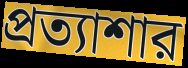
প্রত্যাশার